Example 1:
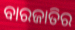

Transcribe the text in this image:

ବାରଜାତିର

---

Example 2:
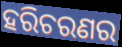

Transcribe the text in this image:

ହରିଚରଣର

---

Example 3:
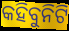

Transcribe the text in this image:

କହିବୁନିଟି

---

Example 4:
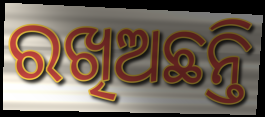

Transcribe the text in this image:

ରଖିଅଛନ୍ତି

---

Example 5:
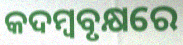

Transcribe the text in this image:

କଦମ୍ୱବୃକ୍ଷରେ